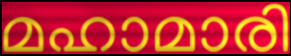
മഹാമാരി